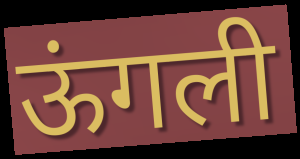
ऊंगली